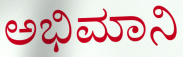
ಅಭಿಮಾನಿ